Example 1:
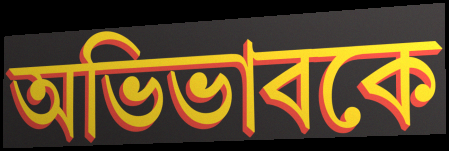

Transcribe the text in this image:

অভিভাবকে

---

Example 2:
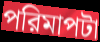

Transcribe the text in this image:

পরিমাপটা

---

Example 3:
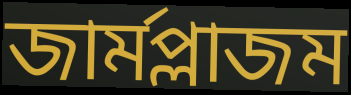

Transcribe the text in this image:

জার্মপ্লাজম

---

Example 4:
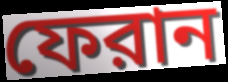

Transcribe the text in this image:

ফেরান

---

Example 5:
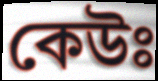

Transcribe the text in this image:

কেউঃ